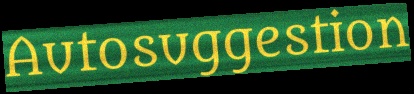
Autosuggestion